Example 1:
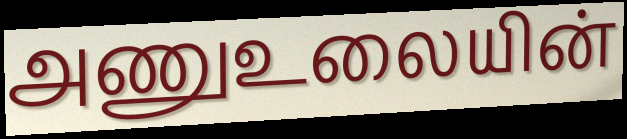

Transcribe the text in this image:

அணுஉலையின்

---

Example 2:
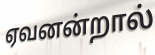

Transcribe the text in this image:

ஏவனன்றால்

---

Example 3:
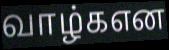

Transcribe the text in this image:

வாழ்கஎன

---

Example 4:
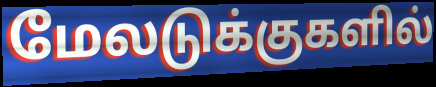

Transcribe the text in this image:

மேலடுக்குகளில்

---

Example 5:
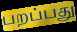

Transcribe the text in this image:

பறப்பது